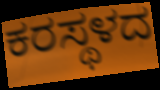
ಕರಸ್ಥಳದ